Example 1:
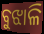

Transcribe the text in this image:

ବୁଝାଳି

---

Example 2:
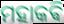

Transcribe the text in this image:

ମହାକଵି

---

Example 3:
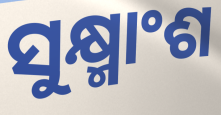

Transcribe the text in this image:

ସୁକ୍ଷ୍ମାଂଶ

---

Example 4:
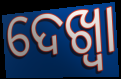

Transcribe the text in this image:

ଦେଖ୍ବା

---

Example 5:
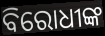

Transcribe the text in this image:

ବିରୋଧୀଙ୍କ